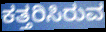
ಕತ್ತರಿಸಿರುವ